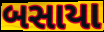
બસાયા